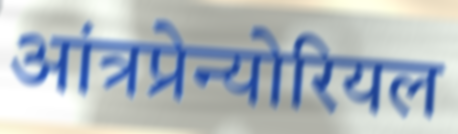
आंत्रप्रेन्योरियल